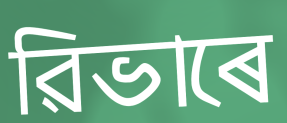
ৱিভাৰে